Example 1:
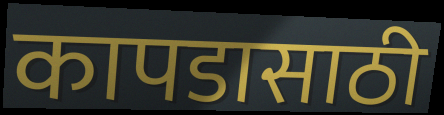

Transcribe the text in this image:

कापडासाठी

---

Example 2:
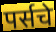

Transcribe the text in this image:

पर्सचे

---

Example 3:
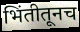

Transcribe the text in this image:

भिंतीतूनच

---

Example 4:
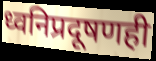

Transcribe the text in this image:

ध्वनिप्रदूषणही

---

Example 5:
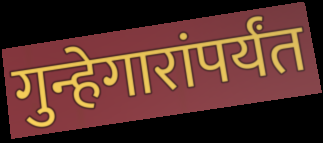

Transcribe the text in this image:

गुन्हेगारांपर्यंत